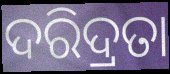
ଦରିଦ୍ରତା